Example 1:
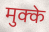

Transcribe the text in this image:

मुक्‍के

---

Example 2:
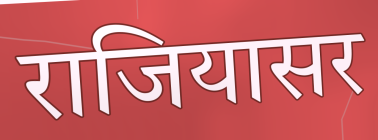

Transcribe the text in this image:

राजियासर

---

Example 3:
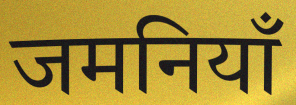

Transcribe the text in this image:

जमनियाँ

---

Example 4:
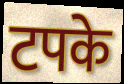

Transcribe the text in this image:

टपके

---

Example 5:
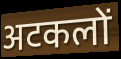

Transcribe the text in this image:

अटकलों